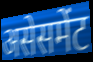
असेसमेंट